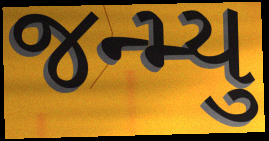
જન્મ્યુ